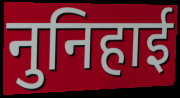
नुनिहाई